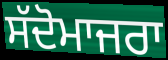
ਸੱਦੋਮਾਜਰਾ